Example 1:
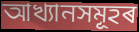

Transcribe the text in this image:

আখ্যানসমূহৰ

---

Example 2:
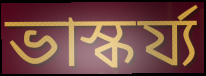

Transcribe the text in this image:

ভাস্কৰ্য্য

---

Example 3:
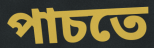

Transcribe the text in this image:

পাচতে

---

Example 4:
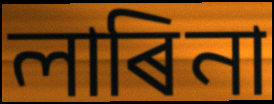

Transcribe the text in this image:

লাৰিনা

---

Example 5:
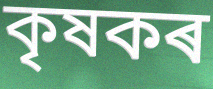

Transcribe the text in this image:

কৃষকৰ